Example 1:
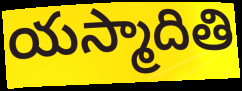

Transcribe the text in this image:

యస్మాదితి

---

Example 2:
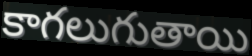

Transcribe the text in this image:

కాగలుగుతాయి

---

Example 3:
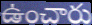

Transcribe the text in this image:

ఉంచారు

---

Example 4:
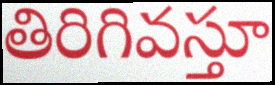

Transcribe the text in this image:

తిరిగివస్తూ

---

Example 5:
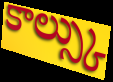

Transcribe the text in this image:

కాల్స్కు